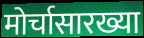
मोर्चासारख्या